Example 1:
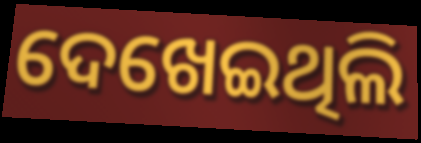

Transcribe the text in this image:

ଦେଖେଇଥିଲି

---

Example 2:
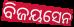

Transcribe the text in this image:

ବିଜୟସେନ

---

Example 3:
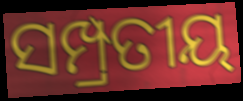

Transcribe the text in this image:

ସମ୍ପ୍ରତୀୟ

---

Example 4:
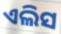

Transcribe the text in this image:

ଏଲିସ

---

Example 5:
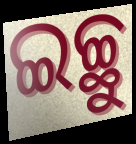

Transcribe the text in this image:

ଇଚ୍ଛୁ